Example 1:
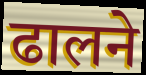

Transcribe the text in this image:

ढालने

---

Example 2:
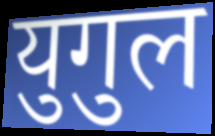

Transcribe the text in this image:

युगुल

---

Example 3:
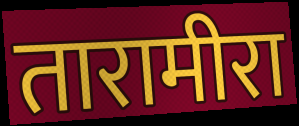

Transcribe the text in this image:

तारामीरा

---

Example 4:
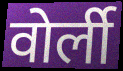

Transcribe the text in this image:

वोर्ली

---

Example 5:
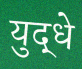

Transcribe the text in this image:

युद्धे